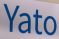
Yato